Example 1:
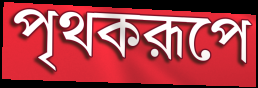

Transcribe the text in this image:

পৃথকরূপে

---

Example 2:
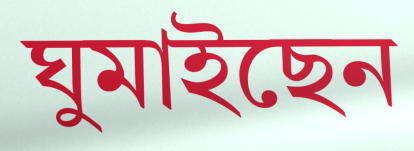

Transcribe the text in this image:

ঘুমাইছেন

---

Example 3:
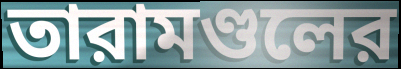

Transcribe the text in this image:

তারামণ্ডলের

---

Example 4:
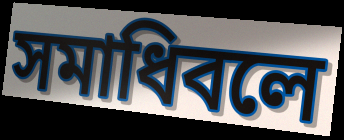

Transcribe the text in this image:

সমাধিবলে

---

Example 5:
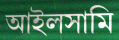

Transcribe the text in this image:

আইলসামি